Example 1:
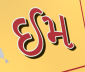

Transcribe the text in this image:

ઈમ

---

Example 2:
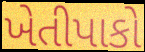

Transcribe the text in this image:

ખેતીપાકો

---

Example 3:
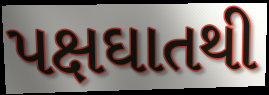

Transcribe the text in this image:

પક્ષઘાતથી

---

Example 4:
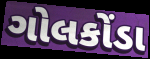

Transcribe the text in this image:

ગોલકોંડા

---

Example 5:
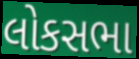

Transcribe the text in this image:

લોકસભા